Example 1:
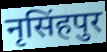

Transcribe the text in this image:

नृसिंहपुर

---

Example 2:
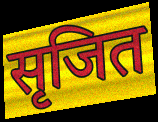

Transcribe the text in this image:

सृजित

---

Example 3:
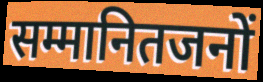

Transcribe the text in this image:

सम्मानितजनों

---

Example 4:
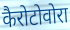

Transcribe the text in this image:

कैरोटोवोरा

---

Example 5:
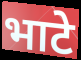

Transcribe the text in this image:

भाटे